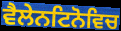
ਵੈਲੇਨਟਿਨੋਵਿਚ